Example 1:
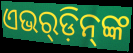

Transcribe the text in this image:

ଏଭର୍‍ଡ଼ିନ୍‌ଙ୍କ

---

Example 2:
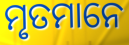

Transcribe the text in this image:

ମୃତମାନେ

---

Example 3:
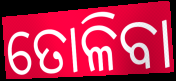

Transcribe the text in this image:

ତୋଳିବା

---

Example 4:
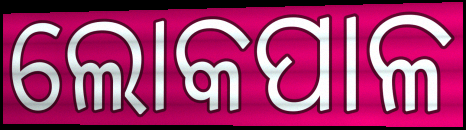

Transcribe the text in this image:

ଲୋକପାଳ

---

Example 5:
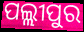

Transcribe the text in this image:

ପଲ୍ଲୀପୁର